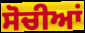
ਸੋਚੀਆਂ